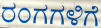
ರಂಗಗಳಿಗೆ